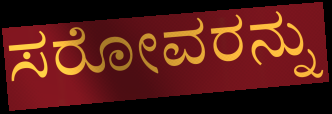
ಸರೋವರನ್ನು